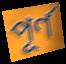
পূৰ্ণ